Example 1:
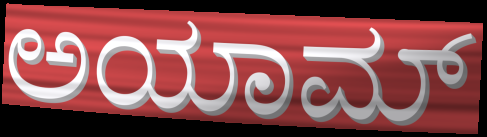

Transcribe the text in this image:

ಅಯಾಮ್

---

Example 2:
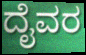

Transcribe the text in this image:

ದೈವರ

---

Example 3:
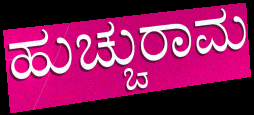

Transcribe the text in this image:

ಹುಚ್ಚುರಾಮ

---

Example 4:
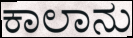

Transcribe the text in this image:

ಕಾಲಾನು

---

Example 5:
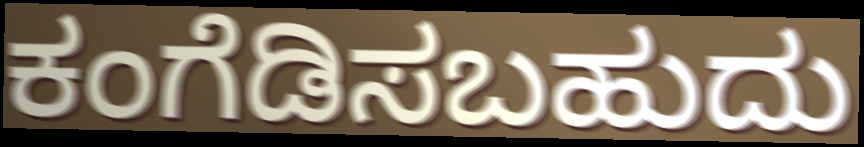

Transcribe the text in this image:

ಕಂಗೆಡಿಸಬಹುದು